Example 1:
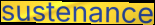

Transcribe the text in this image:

sustenance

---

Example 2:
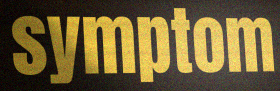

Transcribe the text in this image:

symptom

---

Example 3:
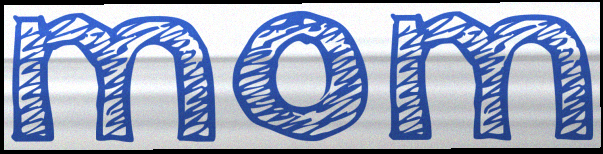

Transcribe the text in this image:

mom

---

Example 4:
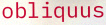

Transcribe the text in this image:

obliquus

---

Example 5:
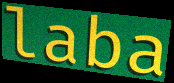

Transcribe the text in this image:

laba